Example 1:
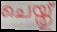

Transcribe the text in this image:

ചെയ്തു്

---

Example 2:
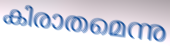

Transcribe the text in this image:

കിരാതമെന്നു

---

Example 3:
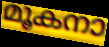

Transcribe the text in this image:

മൂകനാ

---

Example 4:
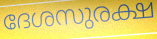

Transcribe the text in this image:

ദേശസുരക്ഷ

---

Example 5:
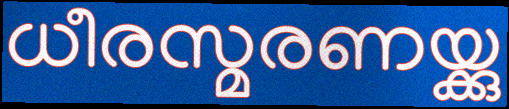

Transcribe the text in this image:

ധീരസ്മരണയ്ക്കു